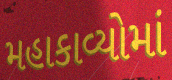
મહાકાવ્યોમાં